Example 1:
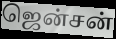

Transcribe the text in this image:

ஜென்சன்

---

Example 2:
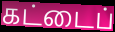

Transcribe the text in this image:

கட்டைப்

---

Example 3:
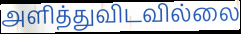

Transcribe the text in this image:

அளித்துவிடவில்லை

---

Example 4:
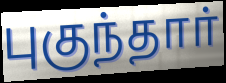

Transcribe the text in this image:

புகுந்தார்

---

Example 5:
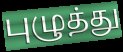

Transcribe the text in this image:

புழுத்து